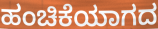
ಹಂಚಿಕೆಯಾಗದ